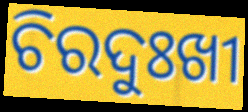
ଚିରଦୁଃଖୀ